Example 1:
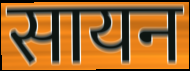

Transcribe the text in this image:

सायन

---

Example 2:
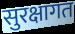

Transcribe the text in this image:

सुरक्षागत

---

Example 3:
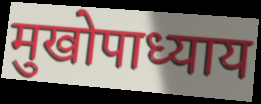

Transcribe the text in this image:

मुखोपाध्याय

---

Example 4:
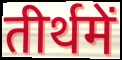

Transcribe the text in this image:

तीर्थमें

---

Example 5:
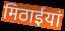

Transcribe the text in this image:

मिठाईयां